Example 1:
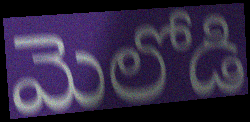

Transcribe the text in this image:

మెలోడి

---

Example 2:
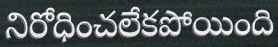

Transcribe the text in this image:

నిరోధించలేకపోయింది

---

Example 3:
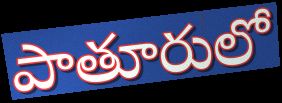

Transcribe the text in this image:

పాతూరులో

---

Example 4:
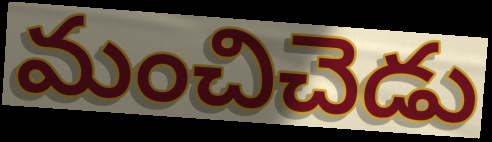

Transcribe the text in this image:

మంచిచెడు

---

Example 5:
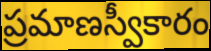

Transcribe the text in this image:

ప్రమాణస్వీకారం